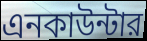
এনকাউন্টার